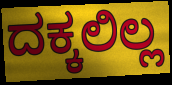
ದಕ್ಕಲಿಲ್ಲ